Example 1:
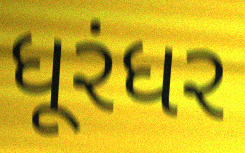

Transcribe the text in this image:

ધૂરંધર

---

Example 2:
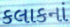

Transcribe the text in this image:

કલાકનાં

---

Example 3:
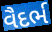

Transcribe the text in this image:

વૈદર્ભ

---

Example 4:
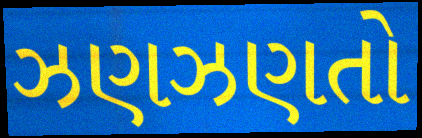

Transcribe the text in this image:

ઝણઝણતો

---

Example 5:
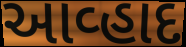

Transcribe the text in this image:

આવ્હાદ